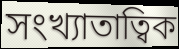
সংখ্যাতাত্বিক